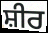
ਸ਼ੀਰ